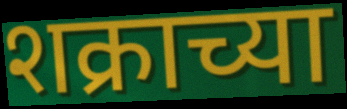
शक्राच्या